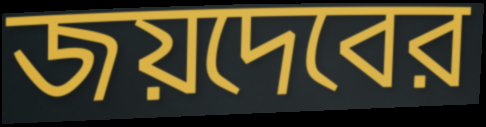
জয়দেবের